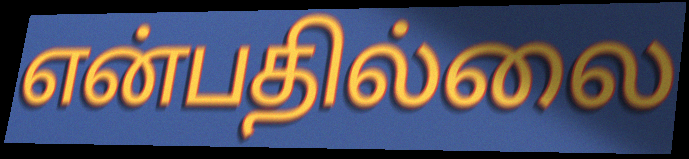
என்பதில்லை